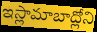
ఇస్లామాబాద్లోని